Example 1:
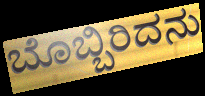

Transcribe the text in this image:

ಬೊಬ್ಬಿರಿದನು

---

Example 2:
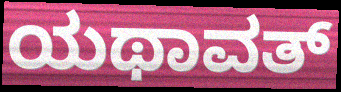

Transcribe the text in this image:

ಯಥಾವತ್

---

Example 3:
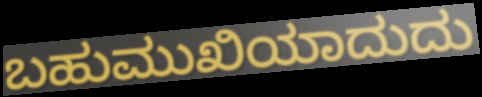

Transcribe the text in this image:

ಬಹುಮುಖಿಯಾದುದು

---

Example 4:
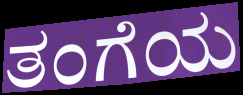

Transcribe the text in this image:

ತಂಗೆಯ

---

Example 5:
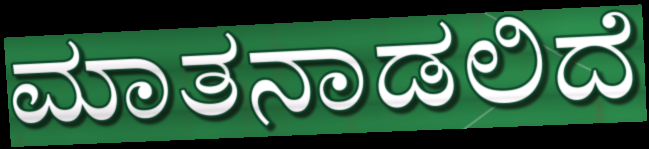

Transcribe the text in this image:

ಮಾತನಾಡಲಿದೆ